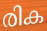
രിക